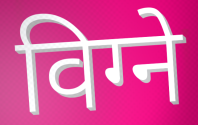
विग्ने